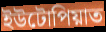
ইউটোপিয়াত